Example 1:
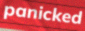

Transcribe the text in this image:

panicked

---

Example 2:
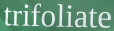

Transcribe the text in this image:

trifoliate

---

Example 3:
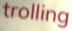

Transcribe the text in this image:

trolling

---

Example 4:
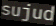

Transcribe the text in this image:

sujud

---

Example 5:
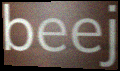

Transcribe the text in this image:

beej